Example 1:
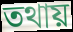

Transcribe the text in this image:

তথায়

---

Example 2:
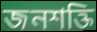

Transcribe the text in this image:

জনশক্তি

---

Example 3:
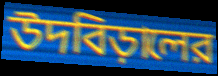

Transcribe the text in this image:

উদবিড়ালের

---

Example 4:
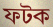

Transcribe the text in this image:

ফটক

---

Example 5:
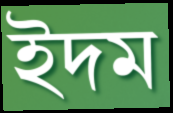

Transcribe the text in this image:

ইদম